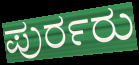
ಪುರ್ರರು